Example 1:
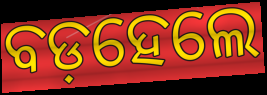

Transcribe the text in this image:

ବଡ଼ହେଲେ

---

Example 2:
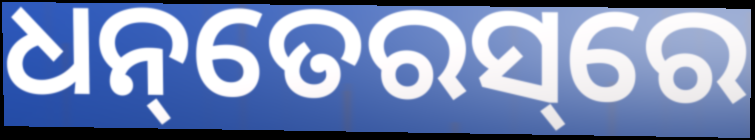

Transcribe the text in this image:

ଧନ୍‌ତେରସ୍‌ରେ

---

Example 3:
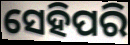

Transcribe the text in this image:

ସେହିପରି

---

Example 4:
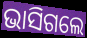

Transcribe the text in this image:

ଭାସିଗଲେ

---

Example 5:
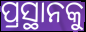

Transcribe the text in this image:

ପ୍ରସ୍ଥାନକୁ